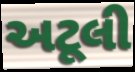
અટૂલી